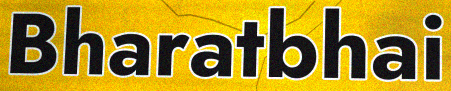
Bharatbhai